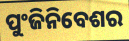
ପୁଂଜିନିବେଶର